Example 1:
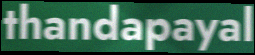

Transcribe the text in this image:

thandapayal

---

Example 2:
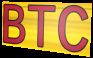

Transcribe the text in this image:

BTC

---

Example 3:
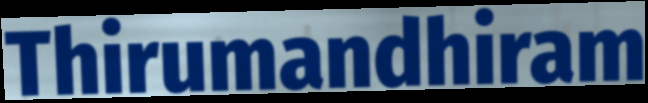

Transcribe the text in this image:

Thirumandhiram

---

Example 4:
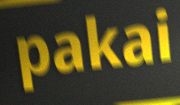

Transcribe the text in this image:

pakai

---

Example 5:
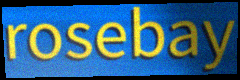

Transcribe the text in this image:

rosebay